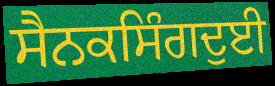
ਸੈਨਕਸਿੰਗਦੁਈ